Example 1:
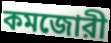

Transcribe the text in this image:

কমজোরী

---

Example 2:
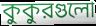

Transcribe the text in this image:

কুকুরগুলো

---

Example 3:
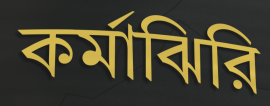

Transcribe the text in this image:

কর্মাঝিরি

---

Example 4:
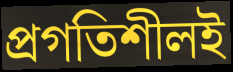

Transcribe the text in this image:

প্রগতিশীলই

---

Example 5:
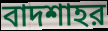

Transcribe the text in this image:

বাদশাহর